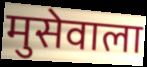
मुसेवाला